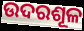
ଉଦରଶୂଳ